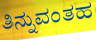
ತಿನ್ನುವಂತಹ